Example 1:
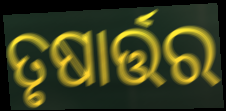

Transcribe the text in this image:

ତୃଷାର୍ତ୍ତର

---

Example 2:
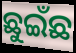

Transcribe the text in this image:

ଛୁଇଁଛ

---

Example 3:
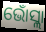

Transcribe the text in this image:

ଭୋଁସ୍ଲା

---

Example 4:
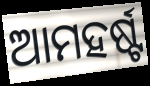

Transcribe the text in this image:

ଆମହର୍ଷ୍ଟ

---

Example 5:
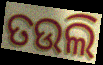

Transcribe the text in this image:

ତଉଲି